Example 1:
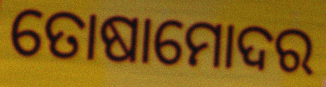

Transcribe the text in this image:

ତୋଷାମୋଦର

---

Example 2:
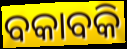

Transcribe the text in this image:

ବକାବକି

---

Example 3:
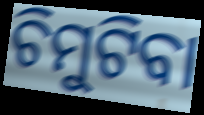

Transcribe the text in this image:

ଚିମୁଟିବା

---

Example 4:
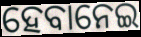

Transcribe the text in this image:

ହେବାନେଇ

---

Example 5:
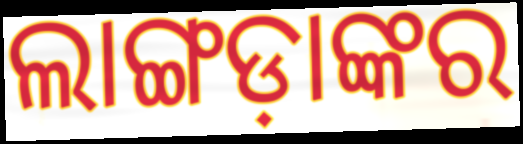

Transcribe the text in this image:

ଲାଙ୍ଗଡ଼ାଙ୍କର